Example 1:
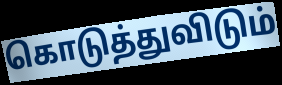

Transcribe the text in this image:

கொடுத்துவிடும்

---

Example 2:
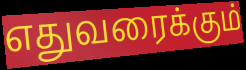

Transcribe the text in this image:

எதுவரைக்கும்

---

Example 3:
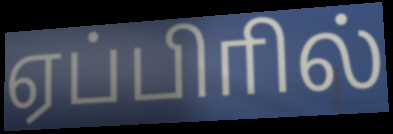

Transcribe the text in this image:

ஏப்பிரில்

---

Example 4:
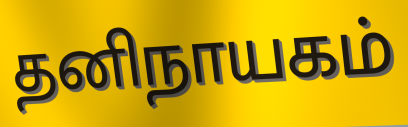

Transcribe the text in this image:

தனிநாயகம்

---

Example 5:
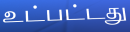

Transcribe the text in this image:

உட்பட்டது